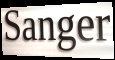
Sanger